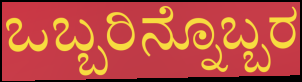
ಒಬ್ಬರಿನ್ನೊಬ್ಬರ